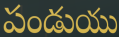
పండుయు